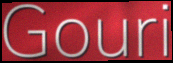
Gouri